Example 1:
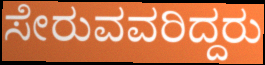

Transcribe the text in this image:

ಸೇರುವವರಿದ್ದರು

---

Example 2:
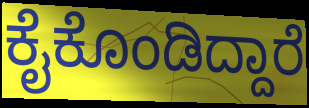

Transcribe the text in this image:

ಕೈಕೊಂಡಿದ್ದಾರೆ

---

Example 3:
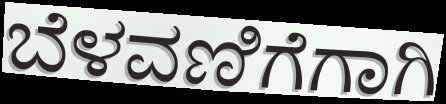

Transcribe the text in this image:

ಬೆಳವಣಿಗೆಗಾಗಿ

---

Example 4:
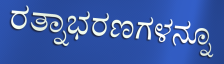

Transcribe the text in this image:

ರತ್ನಾಭರಣಗಳನ್ನೂ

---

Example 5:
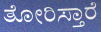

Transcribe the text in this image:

ತೋರಿಸ್ತಾರೆ